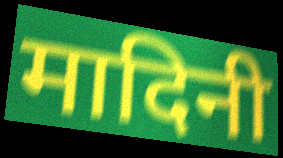
मादिनी